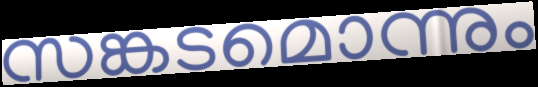
സങ്കടമൊന്നും